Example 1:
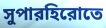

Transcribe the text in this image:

সুপারহিরোতে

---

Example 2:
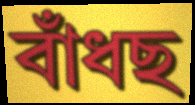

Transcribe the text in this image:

বাঁধছ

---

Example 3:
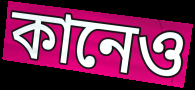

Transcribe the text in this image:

কানেও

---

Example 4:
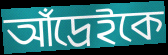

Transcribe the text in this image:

আঁদ্রেইকে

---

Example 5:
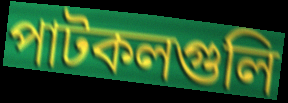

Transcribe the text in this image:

পাটকলগুলি